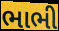
ભાભી